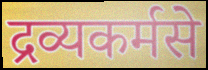
द्रव्यकर्मसे